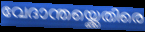
വേദാന്തയ്ക്കെതിരെ